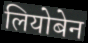
लियोबेन